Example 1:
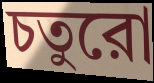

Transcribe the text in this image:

চতুরো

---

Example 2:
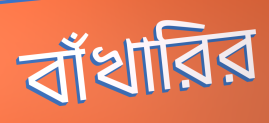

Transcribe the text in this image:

বাঁখারির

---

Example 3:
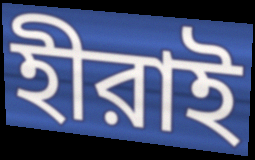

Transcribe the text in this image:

হীরাই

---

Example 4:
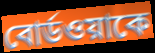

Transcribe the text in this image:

বোর্ডওয়াকে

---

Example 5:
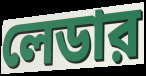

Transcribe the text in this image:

লেডার